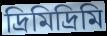
দ্রিমিদ্রিমি